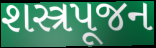
શસ્ત્રપૂજન